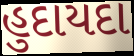
હુદાયદા